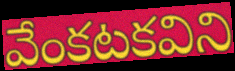
వేంకటకవిని